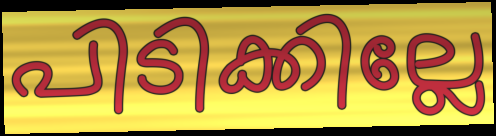
പിടിക്കില്ലേ